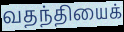
வதந்தியைக்